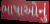
ભાષાઓનું